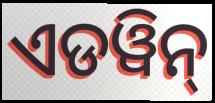
ଏଡୱିନ୍